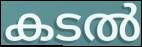
കടൽ